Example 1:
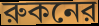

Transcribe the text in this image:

রুকনের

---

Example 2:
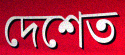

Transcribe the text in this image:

দেশেত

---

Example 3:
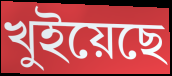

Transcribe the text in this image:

খুইয়েছে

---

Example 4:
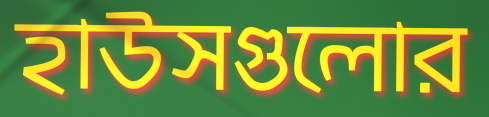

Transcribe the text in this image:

হাউসগুলোর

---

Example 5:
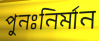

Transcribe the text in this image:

পুনঃনির্মান